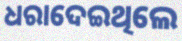
ଧରାଦେଇଥିଲେ